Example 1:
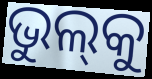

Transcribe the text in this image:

ଭୁଲ୍‍କୁ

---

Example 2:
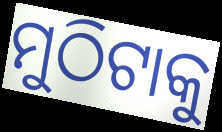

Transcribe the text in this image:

ମୁଠିଟାକୁ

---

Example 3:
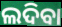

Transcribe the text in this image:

ଲଦିବା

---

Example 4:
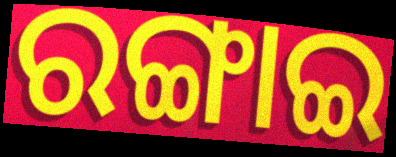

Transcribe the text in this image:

ରଙ୍ଗାଇ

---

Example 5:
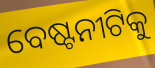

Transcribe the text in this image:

ବେଷ୍ଟନୀଟିକୁ